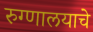
रुग्णालयाचे